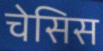
चेसिस